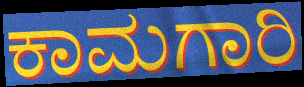
ಕಾಮಗಾರಿ